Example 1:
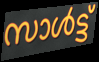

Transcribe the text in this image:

സാൾട്ട്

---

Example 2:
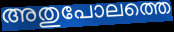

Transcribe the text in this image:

അതുപോലത്തെ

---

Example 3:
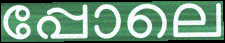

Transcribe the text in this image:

പ്പോലെ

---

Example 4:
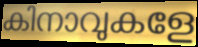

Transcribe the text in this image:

കിനാവുകളേ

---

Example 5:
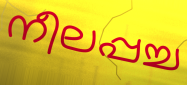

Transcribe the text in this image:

നീലപ്പച്ച